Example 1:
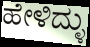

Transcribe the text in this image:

ಹೇಳಿದ್ಳು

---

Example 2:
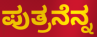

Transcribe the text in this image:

ಪುತ್ರನೆನ್ನ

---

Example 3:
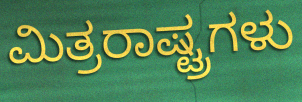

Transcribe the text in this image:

ಮಿತ್ರರಾಷ್ಟ್ರಗಳು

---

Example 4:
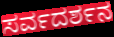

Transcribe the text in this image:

ಸರ್ವದರ್ಶನ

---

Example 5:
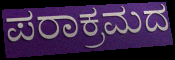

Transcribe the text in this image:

ಪರಾಕ್ರಮದ